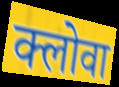
क्लोवा